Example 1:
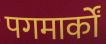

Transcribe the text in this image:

पगमार्कों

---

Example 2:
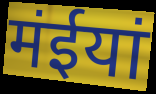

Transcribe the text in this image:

मंईयां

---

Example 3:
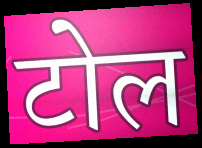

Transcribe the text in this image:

टोल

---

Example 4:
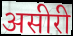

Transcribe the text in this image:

असीरी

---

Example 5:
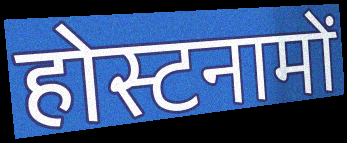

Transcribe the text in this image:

होस्टनामों